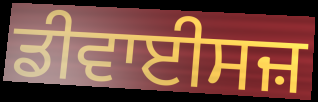
ਡੀਵਾਈਸਜ਼